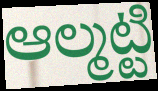
ఆల్మట్టి